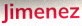
Jimenez